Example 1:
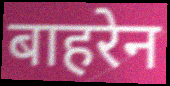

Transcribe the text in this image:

बाहरेन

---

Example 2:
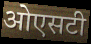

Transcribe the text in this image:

ओएसटी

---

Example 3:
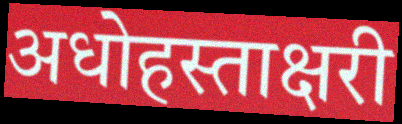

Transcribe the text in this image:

अधोहस्ताक्षरी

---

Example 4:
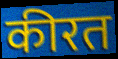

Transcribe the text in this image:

कीरत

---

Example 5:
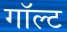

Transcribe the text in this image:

गॉल्ट